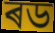
ৰড